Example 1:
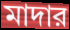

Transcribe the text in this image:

মাদার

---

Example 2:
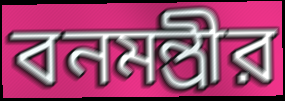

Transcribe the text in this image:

বনমন্ত্রীর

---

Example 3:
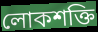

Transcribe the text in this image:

লোকশক্তি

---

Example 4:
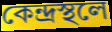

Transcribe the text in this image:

কেন্দ্রস্থলে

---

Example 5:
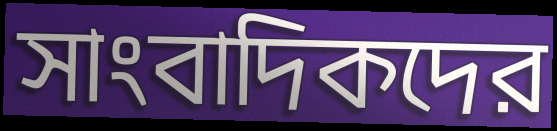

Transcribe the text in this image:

সাংবাদিকদের